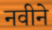
नवीने